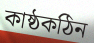
কাষ্ঠকঠিন